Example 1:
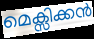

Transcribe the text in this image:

മെക്സിക്കൻ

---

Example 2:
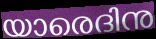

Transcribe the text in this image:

യാരെദിനു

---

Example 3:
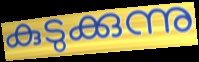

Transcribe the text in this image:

കുടുക്കുന്നു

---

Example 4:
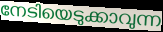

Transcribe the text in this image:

നേടിയെടുക്കാവുന്ന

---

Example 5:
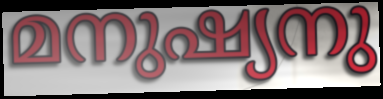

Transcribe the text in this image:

മനുഷ്യനു